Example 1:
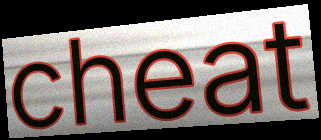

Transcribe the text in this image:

cheat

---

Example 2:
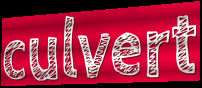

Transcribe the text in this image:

culvert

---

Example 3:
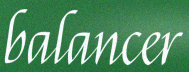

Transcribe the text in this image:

balancer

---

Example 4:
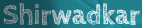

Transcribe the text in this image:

Shirwadkar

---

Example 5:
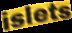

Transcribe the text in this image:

islets